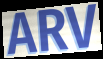
ARV